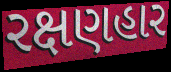
રક્ષણહાર